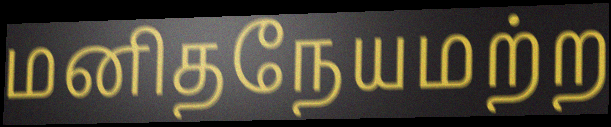
மனிதநேயமற்ற